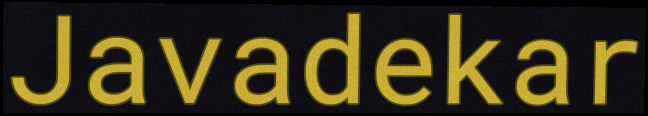
Javadekar